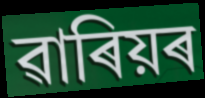
ৱাৰিয়ৰ